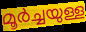
മൂർച്ചയുള്ള